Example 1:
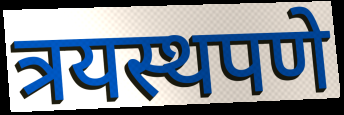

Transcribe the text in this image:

त्रयस्थपणे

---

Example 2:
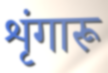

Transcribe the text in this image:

शृंगारू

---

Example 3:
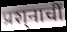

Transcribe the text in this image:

प्रश्नाचीं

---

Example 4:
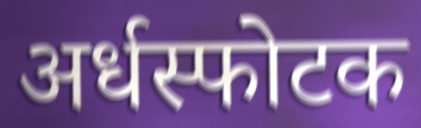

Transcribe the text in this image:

अर्धस्फोटक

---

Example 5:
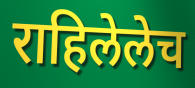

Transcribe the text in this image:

राहिलेलेच